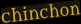
chinchon